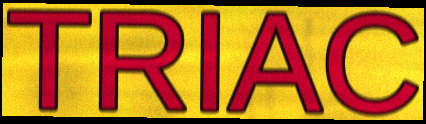
TRIAC